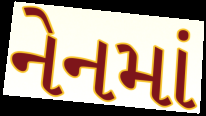
નેનમાં